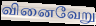
வினைவேறு